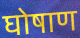
घोषाण